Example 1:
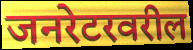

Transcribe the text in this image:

जनरेटरवरील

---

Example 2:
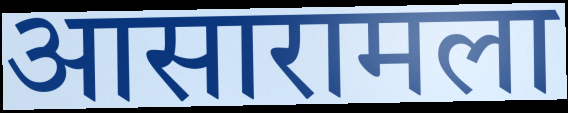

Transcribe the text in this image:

आसारामला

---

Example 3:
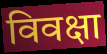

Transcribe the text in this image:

विवक्षा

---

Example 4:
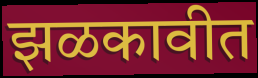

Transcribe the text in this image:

झळकावीत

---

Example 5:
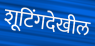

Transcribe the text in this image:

शूटिंगदेखील